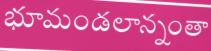
భూమండలాన్నంతా